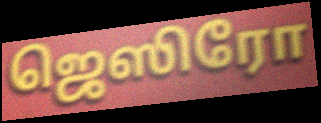
ஜெஸிரோ